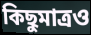
কিছুমাত্রও